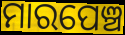
ମାରପେଞ୍ଚ